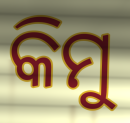
କିମୁ